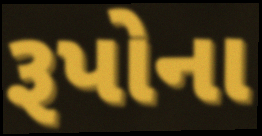
રૂપોના